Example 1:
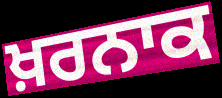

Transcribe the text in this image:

ਖ਼ਰਨਾਕ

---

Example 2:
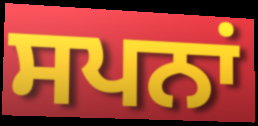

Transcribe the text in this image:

ਸਪਨਾਂ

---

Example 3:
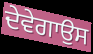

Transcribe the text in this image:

ਦੇਵੇਗਾਉਸ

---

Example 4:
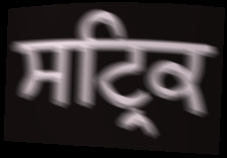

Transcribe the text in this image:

ਸਟ੍ਰਿਕ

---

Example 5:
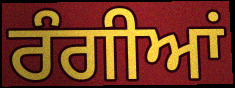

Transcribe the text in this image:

ਰੰਗੀਆਂ